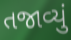
તજાવ્યું